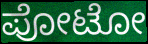
ಪೋಟೋ